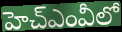
హెచ్ఎంవీలో